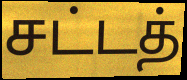
சட்டத்